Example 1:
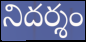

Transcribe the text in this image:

నిదర్శం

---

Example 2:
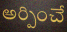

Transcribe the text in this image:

అర్పించే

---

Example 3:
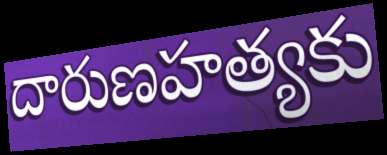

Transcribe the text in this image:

దారుణహత్యకు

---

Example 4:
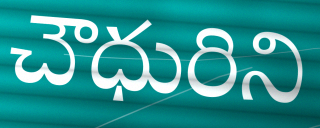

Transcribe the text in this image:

చౌధురిని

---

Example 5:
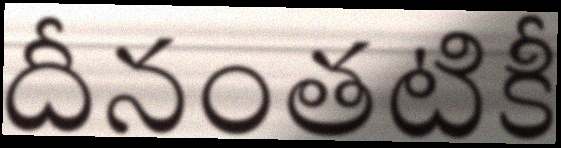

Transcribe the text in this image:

దీనంతటికీ